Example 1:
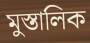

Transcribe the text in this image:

মুস্তালিক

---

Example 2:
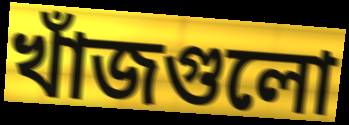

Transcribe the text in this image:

খাঁজগুলো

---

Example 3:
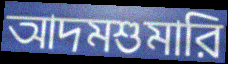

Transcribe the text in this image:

আদমশুমারি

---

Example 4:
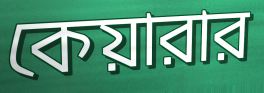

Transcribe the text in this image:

কেয়ারার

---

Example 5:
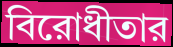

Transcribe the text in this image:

বিরোধীতার